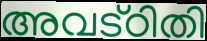
അവട്ഠിതി